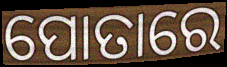
ପୋତାରେ